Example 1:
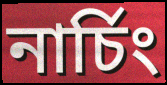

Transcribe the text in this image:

নাৰ্চিং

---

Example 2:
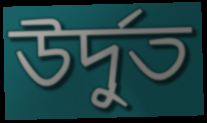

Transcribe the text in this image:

উৰ্দুত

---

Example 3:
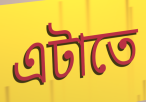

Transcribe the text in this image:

এটাতে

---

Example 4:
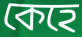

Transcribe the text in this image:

কেহে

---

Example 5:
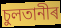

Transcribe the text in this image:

চুলতানীৰ